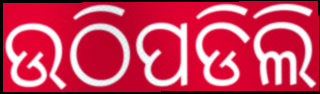
ଉଠିପଡିଲି